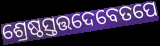
ଶ୍ରେଷ୍ଠସ୍ତତ୍ତଦେବେତପେ